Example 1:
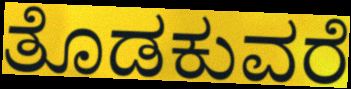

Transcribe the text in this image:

ತೊಡಕುವರೆ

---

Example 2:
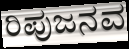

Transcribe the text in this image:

ರಿಪುಜನವ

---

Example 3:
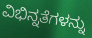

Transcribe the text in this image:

ವಿಭಿನ್ನತೆಗಳನ್ನು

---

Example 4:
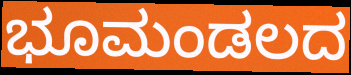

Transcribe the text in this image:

ಭೂಮಂಡಲದ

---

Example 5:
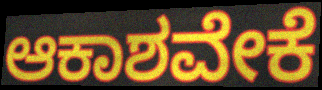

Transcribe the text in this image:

ಆಕಾಶವೇಕೆ